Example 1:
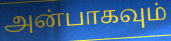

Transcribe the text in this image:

அன்பாகவும்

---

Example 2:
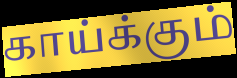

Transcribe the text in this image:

காய்க்கும்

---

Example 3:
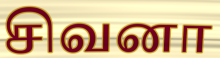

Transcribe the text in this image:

சிவனா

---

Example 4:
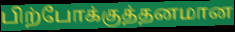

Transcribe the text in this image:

பிற்போக்குத்தனமான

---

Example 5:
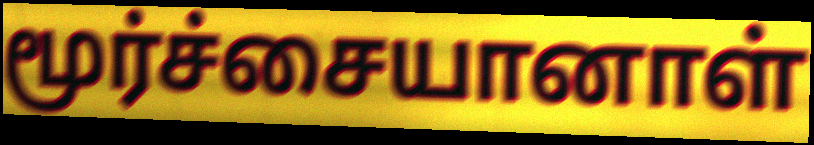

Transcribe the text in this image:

மூர்ச்சையானாள்